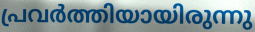
പ്രവർത്തിയായിരുന്നു